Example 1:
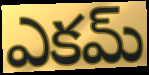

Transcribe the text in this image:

ఎకమ్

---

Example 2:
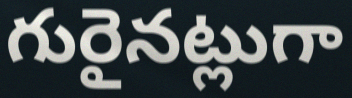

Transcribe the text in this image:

గురైనట్లుగా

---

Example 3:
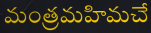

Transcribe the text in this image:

మంత్రమహిమచే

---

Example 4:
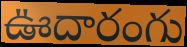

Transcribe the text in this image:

ఊదారంగు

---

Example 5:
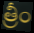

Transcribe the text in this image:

త్రీం